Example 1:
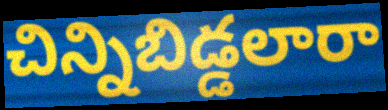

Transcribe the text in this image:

చిన్నిబిడ్డలారా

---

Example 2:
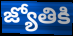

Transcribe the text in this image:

జ్యోతికి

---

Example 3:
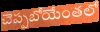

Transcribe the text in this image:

చెప్పబోయేంతలో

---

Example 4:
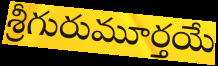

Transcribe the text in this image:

శ్రీగురుమూర్తయే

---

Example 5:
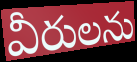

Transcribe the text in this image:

వీరులను